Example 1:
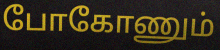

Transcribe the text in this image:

போகோணும்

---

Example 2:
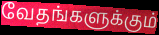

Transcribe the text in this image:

வேதங்களுக்கும்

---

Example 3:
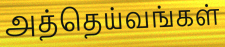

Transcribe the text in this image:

அத்தெய்வங்கள்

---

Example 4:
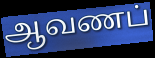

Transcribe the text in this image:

ஆவணப்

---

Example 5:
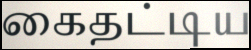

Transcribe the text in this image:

கைதட்டிய